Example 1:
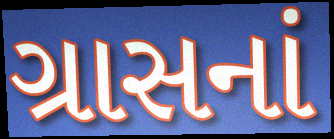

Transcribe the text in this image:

ગ્રાસનાં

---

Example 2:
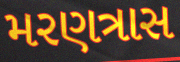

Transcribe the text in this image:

મરણત્રાસ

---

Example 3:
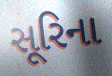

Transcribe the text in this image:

સૂરિના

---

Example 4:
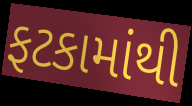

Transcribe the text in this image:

ફટકામાંથી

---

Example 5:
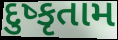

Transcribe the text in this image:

દુષ્કૃતામ